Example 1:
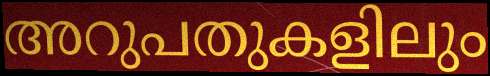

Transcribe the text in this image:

അറുപതുകളിലും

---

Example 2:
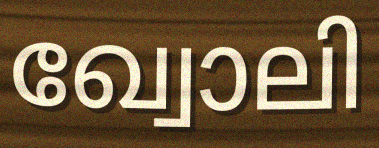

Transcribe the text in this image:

ഖ്വോലി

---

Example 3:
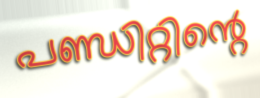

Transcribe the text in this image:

പണ്ഡിറ്റിന്റെ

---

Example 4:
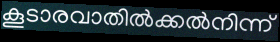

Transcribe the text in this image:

കൂടാരവാതിൽക്കൽനിന്ന്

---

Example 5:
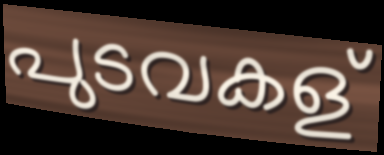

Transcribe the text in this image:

പുടവകള്